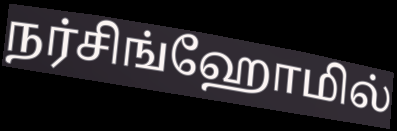
நர்சிங்ஹோமில்